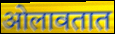
ओलावतात